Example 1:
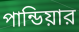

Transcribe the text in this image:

পান্ডিয়ার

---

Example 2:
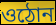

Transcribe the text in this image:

ওঠোন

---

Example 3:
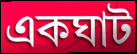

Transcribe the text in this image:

একঘাট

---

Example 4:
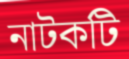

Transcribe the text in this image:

নাটকটি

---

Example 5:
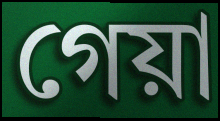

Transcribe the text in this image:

গেয়া